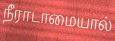
நீராடாமையால்